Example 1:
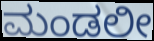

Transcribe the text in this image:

ಮಂಡಲೀ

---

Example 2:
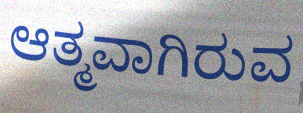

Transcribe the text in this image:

ಆತ್ಮವಾಗಿರುವ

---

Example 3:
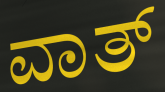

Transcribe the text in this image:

ವಾತ್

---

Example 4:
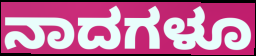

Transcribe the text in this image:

ನಾದಗಳೂ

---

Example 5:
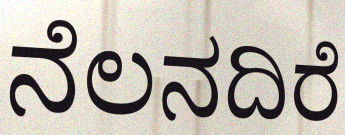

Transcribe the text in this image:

ನೆಲನದಿರೆ